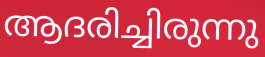
ആദരിച്ചിരുന്നു